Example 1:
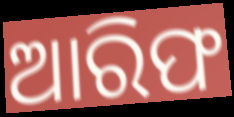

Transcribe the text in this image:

ଆରିଫ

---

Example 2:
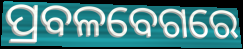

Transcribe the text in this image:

ପ୍ରବଳବେଗରେ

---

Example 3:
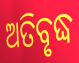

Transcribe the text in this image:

ଅତିବୃଦ୍ଧ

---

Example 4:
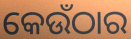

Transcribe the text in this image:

କେଉଁଠାର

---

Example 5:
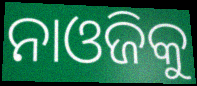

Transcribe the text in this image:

ନାଓଜିକୁ